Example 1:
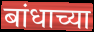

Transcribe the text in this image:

बांधाच्या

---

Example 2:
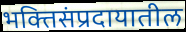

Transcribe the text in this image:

भक्तिसंप्रदायातील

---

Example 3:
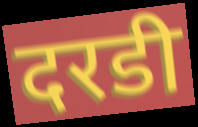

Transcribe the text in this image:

दरडी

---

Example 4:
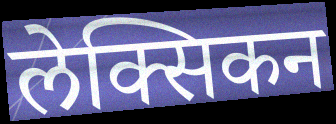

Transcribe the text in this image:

लेक्सिकन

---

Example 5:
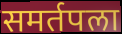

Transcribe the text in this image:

समर्तपला